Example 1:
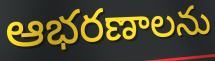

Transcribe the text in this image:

ఆభరణాలను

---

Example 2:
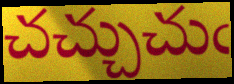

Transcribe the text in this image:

చచ్చుచుఁ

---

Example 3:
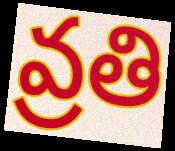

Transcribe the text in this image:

వ్రతి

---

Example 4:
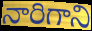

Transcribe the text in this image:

నారిగాని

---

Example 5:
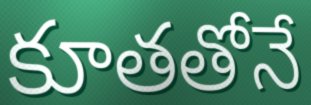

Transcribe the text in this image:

కూతతోనే